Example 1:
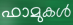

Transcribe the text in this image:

ഫാമുകൾ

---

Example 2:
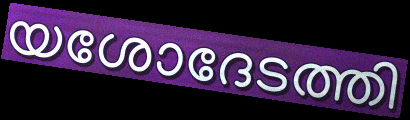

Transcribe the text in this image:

യശോദേടത്തി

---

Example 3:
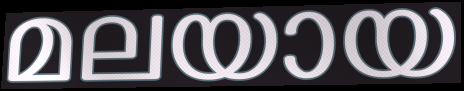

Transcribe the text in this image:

മലയായ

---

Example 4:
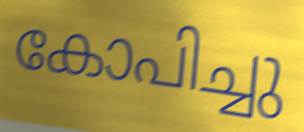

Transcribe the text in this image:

കോപിച്ചു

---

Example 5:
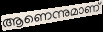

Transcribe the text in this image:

ആണെന്നുമാണ്